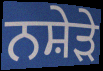
ਨਸ਼ੇੜੇ